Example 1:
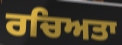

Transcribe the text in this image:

ਰਚਿਅਤਾ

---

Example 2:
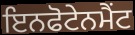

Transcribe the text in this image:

ਇਨਫੋਟੇਨਮੈਂਟ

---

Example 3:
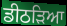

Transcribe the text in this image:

ਡੀਠੜਿਆ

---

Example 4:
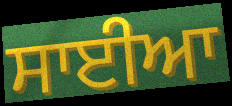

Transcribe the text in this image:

ਸਾਈਆ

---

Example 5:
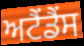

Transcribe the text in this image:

ਅਟੈਂਡੈਂਸ